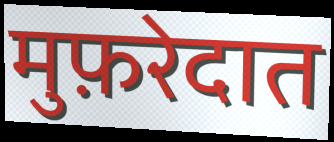
मुफ़रेदात